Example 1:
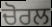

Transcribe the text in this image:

ਚੋਰਲ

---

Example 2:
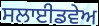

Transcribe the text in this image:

ਸਲਾਈਡਵੇਅ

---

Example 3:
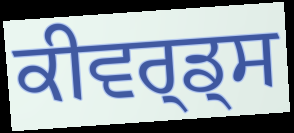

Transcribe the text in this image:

ਕੀਵਰ੍ਡ੍ਸ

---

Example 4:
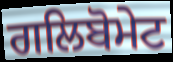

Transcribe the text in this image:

ਗਲਿਬੋਮੇਟ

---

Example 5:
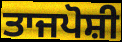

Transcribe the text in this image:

ਤਾਜਪੋਸ਼ੀ